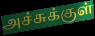
அச்சுக்குள்